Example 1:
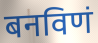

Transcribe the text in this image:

बनविणं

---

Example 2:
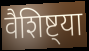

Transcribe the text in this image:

वैशिष्ट्या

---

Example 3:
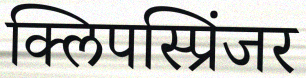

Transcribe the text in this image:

क्लिपस्प्रिंजर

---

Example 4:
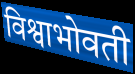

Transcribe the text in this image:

विश्वाभोवती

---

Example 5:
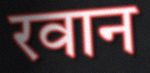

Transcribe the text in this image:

रवान